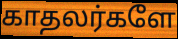
காதலர்களே